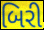
બિરી